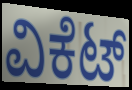
ವಿಕೆಟ್